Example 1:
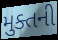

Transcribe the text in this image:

મુક્તની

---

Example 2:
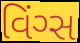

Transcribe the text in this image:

વિંગ્સ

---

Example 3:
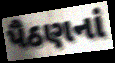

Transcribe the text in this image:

પૈઠણનાં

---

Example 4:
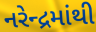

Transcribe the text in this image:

નરેન્દ્રમાંથી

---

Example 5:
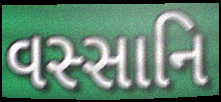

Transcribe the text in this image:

વસ્સાનિ